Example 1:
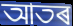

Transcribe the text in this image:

আতৰ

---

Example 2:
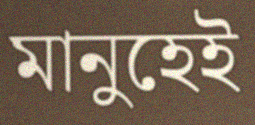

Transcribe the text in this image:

মানুহেই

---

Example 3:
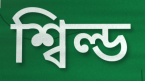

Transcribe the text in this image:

শ্বিল্ড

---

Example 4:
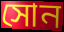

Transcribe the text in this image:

সোন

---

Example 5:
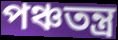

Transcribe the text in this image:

পঞ্চতন্ত্ৰ